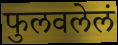
फुलवलेलं